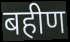
बहीण